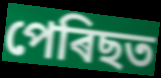
পেৰিছত